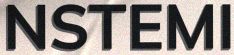
NSTEMI